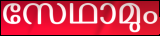
സേഥാമും